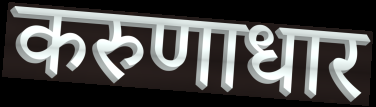
करुणाधार